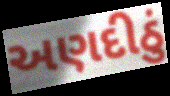
અણદીઠું